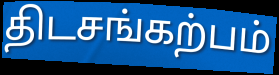
திடசங்கற்பம்